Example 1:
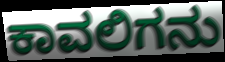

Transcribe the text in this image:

ಕಾವಲಿಗನು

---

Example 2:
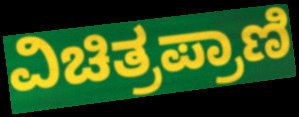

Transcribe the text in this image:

ವಿಚಿತ್ರಪ್ರಾಣಿ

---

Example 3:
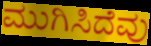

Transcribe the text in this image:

ಮುಗಿಸಿದೆವು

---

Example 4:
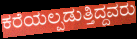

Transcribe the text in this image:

ಕರೆಯಲ್ಪಡುತ್ತಿದ್ದವರು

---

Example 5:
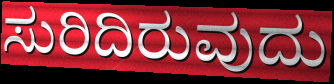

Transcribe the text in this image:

ಸುರಿದಿರುವುದು